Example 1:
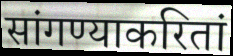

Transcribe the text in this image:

सांगण्याकरितां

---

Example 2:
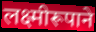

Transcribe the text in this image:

लक्ष्मीरूपाने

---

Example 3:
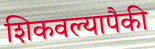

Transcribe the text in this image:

शिकवल्यापैकी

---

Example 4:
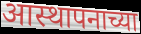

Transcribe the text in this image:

आस्थापनाच्या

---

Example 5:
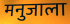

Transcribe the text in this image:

मनुजाला